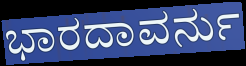
ಭಾರದಾವರ್ನು